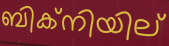
ബിക്നിയില്